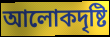
আলোকদৃষ্টি